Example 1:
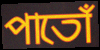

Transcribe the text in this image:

পাতোঁ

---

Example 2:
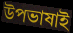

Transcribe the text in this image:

উপভাষাই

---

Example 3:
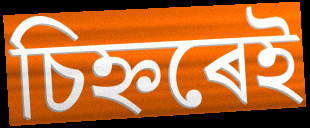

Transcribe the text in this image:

চিহ্নৰেই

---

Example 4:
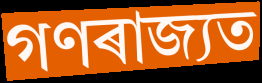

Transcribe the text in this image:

গণৰাজ্যত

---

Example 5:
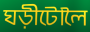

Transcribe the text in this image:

ঘড়ীটোলৈ